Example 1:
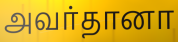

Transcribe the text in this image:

அவர்தானா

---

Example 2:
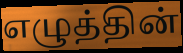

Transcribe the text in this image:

எழுத்தின்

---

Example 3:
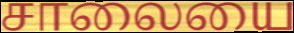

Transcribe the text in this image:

சாலையை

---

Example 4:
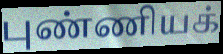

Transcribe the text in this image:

புண்ணியக்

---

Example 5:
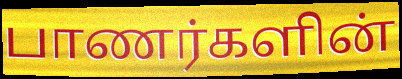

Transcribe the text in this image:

பாணர்களின்